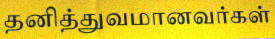
தனித்துவமானவர்கள்